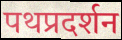
पथप्रदर्शन